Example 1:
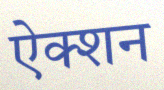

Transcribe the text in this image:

ऐक्शन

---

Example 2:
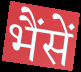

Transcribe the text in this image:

भैंसें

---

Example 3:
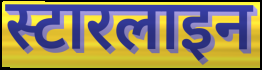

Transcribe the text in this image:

स्टारलाइन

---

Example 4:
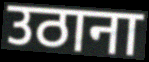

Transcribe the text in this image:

उठाना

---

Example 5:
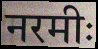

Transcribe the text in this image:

नरमीः